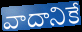
వాదానికే